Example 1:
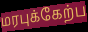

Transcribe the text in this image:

மரபுக்கேற்ப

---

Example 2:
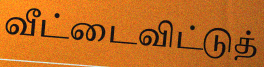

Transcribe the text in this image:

வீட்டைவிட்டுத்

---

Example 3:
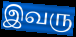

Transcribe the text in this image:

இவரு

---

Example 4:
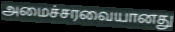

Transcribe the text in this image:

அமைச்சரவையானது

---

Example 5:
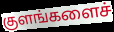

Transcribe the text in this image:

குளங்களைச்